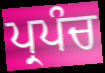
ਪ੍ਰਪੰਚ